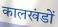
कालखंडों